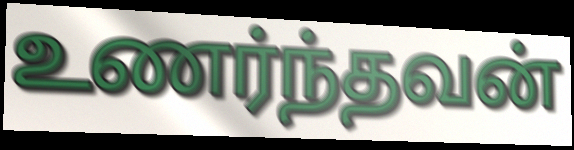
உணர்ந்தவன்